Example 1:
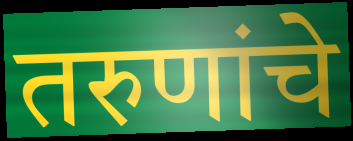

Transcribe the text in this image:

तरुणांचे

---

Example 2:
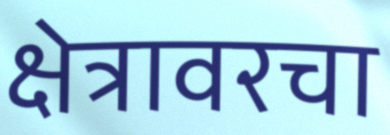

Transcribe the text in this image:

क्षेत्रावरचा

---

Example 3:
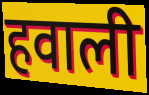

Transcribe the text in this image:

हवाली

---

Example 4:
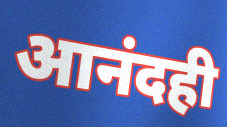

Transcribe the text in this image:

आनंदही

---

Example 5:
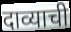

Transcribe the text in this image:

दाव्याची